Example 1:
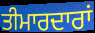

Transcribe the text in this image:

ਤੀਮਾਰਦਾਰਾਂ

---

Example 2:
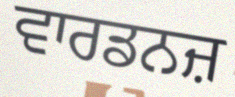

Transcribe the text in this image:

ਵਾਰਡਨਜ਼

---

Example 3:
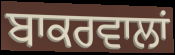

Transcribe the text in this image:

ਬਾਕਰਵਾਲਾਂ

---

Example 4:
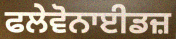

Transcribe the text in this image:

ਫਲੇਵੋਨਾਈਡਜ਼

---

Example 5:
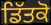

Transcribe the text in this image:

ਡਿੱਤਕੋ